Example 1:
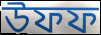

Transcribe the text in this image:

উফফ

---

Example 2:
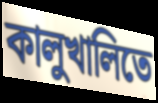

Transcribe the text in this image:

কালুখালিতে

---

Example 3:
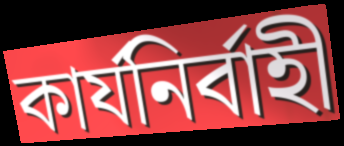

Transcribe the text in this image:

কার্যনির্বাহী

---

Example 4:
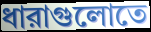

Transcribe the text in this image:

ধারাগুলোতে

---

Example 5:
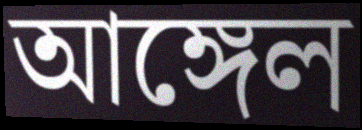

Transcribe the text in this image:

আঙ্গেল